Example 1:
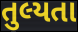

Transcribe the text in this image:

તુલ્યતા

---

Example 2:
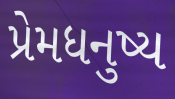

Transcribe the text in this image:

પ્રેમધનુષ્ય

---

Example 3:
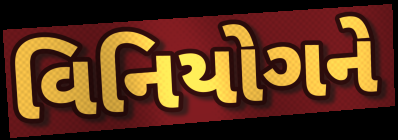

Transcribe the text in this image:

વિનિયોગને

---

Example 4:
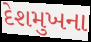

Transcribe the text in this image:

દેશમુખના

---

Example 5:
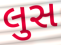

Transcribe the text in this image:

લુસ